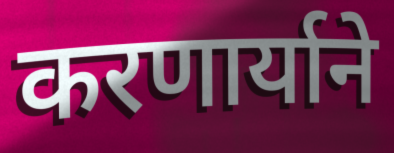
करणार्याने